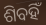
ଶିବହିଁ